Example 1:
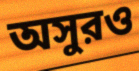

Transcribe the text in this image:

অসুরও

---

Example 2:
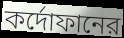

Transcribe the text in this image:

কর্দোফানের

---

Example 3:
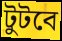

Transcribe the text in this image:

টুটবে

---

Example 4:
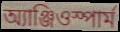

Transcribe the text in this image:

অ্যাঞ্জিওস্পার্ম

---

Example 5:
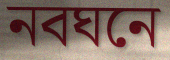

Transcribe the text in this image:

নবঘনে